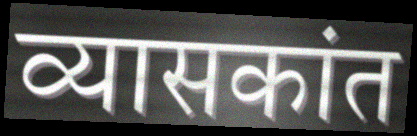
व्यासकांत